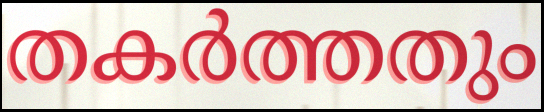
തകർത്തതും